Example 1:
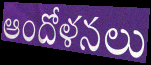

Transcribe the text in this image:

ఆందోళనలు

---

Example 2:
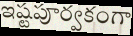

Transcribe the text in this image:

ఇష్టపూర్వకంగా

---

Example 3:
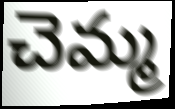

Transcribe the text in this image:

చెమ్మ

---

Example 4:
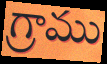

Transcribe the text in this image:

గ్రాము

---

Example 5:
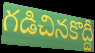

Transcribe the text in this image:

గడిచినకొద్దీ